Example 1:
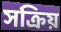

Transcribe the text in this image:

সক্ৰিয়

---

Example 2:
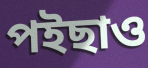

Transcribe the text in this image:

পইছাও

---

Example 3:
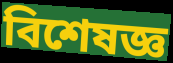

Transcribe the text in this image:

বিশেষজ্ঞ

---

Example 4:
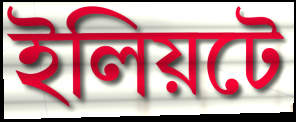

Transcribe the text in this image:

ইলিয়টে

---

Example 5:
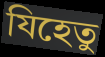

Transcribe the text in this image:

যিহেতু